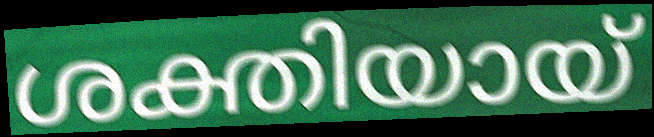
ശക്തിയായ്